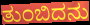
ತುಂಬಿದನು